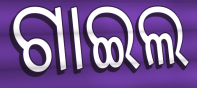
ଗାଇଲ